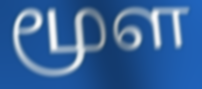
மூள